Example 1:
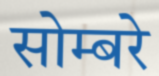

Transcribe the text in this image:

सोम्बरे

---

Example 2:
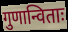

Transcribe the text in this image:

गुणान्विताः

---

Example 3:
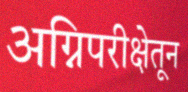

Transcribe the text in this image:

अग्निपरीक्षेतून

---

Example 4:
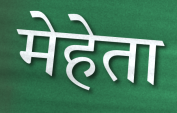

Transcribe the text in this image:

मेहेता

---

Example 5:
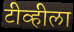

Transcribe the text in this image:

टीव्हीला